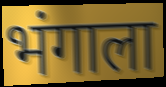
भंगाला